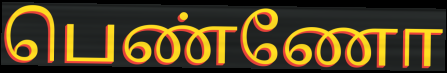
பெண்ணோ